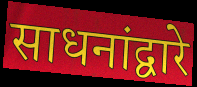
साधनांद्वारे